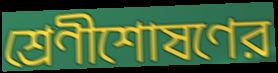
শ্রেণীশোষণের